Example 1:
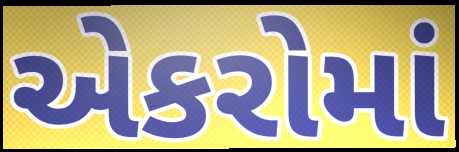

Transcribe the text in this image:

એકરોમાં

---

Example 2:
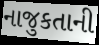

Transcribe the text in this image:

નાજુકતાની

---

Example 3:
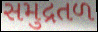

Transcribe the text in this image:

સમુદ્રતળ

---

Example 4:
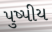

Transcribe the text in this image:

પુષ્પીય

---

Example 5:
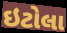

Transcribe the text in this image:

ઇટોલા